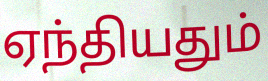
ஏந்தியதும்